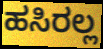
ಹಸಿರಲ್ಲ